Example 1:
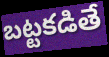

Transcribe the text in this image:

బట్టకడితే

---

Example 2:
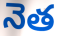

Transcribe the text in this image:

నెత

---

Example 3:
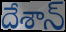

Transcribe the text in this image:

దేశాన్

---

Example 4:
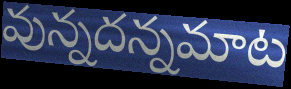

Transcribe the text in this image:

వున్నదన్నమాట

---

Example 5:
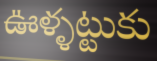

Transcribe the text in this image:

ఊళ్ళట్టుకు